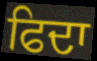
ਫਿਦਾ